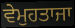
ਵੇਮੁਹਤਾਜਾ